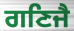
ਗਣਿਜੈ